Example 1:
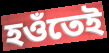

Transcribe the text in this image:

হওঁতেই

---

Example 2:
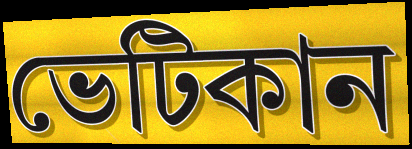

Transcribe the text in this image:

ভেটিকান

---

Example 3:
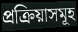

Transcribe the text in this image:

প্ৰক্ৰিয়াসমূহ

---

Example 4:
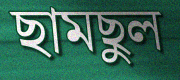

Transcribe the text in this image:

ছামছুল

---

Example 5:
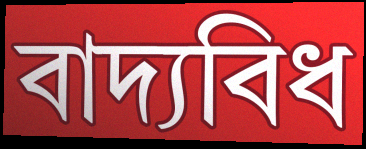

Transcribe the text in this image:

বাদ্যবিধ